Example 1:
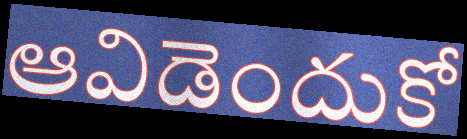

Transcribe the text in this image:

ఆవిడెందుకో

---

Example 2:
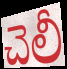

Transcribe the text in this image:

చెలీ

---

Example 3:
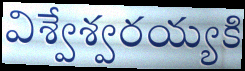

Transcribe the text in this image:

విశ్వేశ్వరయ్యకి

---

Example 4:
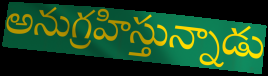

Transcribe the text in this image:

అనుగ్రహిస్తున్నాడు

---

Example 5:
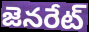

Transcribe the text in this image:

జెనరేట్